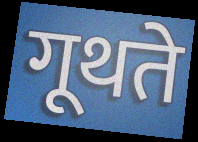
गूथते